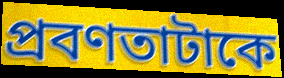
প্রবণতাটাকে